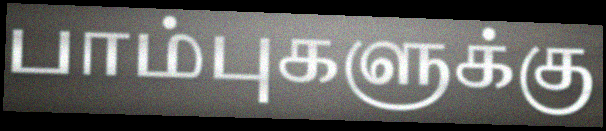
பாம்புகளுக்கு